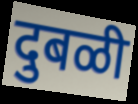
दुबळी